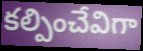
కల్పించేవిగా